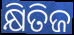
କ୍ଷିତିଜ